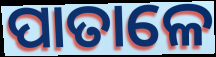
ପାତାଳେ